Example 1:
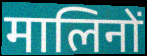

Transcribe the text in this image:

मालिनों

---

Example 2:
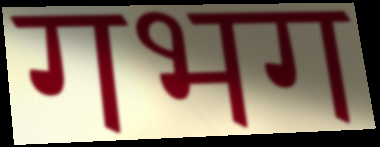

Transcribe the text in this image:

गभग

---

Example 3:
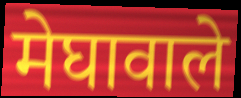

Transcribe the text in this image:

मेघावाले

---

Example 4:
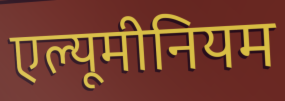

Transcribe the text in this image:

एल्‍यूमीनियम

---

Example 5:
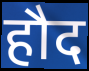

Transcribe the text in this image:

हौद